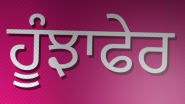
ਹੂੰਝਾਫੇਰ